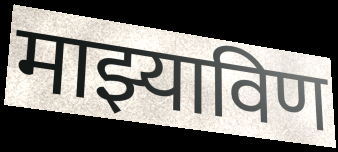
माझ्याविण